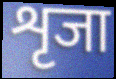
शृजा